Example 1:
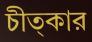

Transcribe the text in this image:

চীত্কার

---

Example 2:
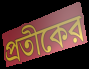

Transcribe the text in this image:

প্রতীকের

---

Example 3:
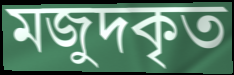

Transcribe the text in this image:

মজুদকৃত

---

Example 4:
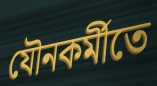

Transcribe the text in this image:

যৌনকর্মীতে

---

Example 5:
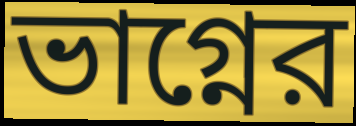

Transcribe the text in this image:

ভাগ্নের